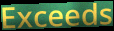
Exceeds